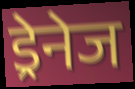
ड्रेनेज